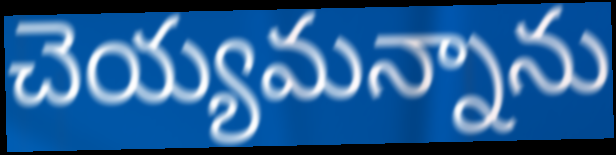
చెయ్యమన్నాను